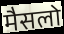
मैसलो